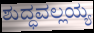
ಶುದ್ಧವಲ್ಲಯ್ಯ